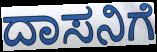
ದಾಸನಿಗೆ